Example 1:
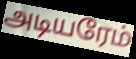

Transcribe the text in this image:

அடியரேம்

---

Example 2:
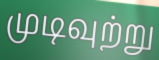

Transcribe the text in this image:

முடிவுற்று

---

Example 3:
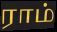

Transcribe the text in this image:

ராம்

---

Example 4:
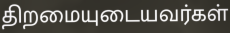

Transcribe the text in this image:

திறமையுடையவர்கள்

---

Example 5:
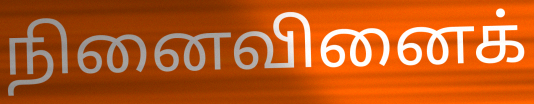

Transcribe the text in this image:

நினைவினைக்